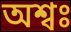
অশ্বঃ